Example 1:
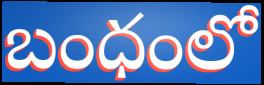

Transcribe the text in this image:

బంధంలో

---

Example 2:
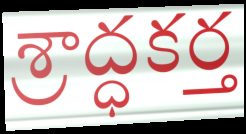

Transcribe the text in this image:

శ్రాద్ధకర్త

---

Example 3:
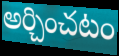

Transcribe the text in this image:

అర్చించటం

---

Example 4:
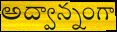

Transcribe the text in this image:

అద్వాన్నంగా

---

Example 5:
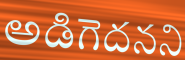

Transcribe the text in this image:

అడిగెదనని